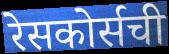
रेसकोर्सची